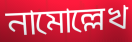
নামোল্লেখ